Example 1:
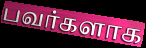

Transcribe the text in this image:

பவர்களாக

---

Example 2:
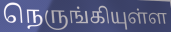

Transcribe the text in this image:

நெருங்கியுள்ள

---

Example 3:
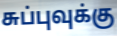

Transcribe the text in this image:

சுப்புவுக்கு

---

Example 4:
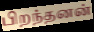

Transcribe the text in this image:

பிறந்தனன்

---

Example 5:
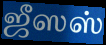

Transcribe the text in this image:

ஜீஸஸ்